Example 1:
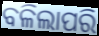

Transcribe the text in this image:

ବଳିଲାପରି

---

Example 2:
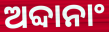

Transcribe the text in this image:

ଅବ୍ଦାନାଂ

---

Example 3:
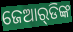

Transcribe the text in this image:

ଜେଆର୍‌ଡିଙ୍କ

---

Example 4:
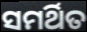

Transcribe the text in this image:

ସମର୍ଥିତ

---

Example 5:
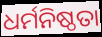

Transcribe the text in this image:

ଧର୍ମନିଷ୍ଠତା